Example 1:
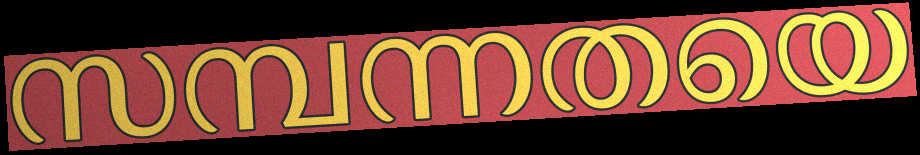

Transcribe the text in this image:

സമ്പന്നതയെ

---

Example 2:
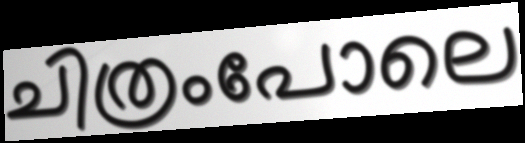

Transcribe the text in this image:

ചിത്രംപോലെ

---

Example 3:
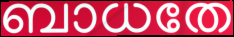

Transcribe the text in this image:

ബാധതേ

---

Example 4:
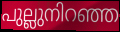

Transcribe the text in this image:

പുല്ലുനിറഞ്ഞ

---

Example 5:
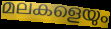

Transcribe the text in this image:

മലകളെയും